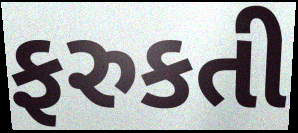
ફરુકતી